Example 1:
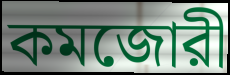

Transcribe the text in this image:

কমজোরী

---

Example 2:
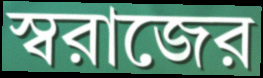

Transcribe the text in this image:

স্বরাজের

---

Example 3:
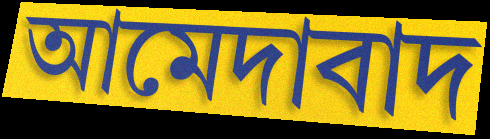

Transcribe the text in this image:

আমেদাবাদ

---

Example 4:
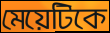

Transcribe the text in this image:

মেয়েটিকে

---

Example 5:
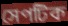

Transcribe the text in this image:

সেপটিক